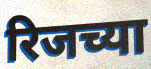
रिजच्या